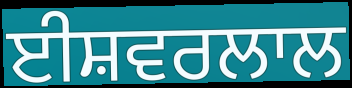
ਈਸ਼ਵਰਲਾਲ